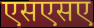
एसएसए